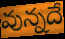
వున్నదే